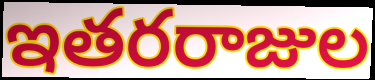
ఇతరరాజుల